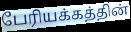
பேரியக்கத்தின்